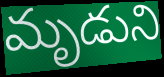
మృడుని